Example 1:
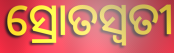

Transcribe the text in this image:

ସ୍ରୋତସ୍ଵତୀ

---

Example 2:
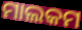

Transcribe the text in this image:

ମାଲକମ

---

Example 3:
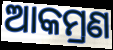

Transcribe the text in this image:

ଆକମ୍ରଣ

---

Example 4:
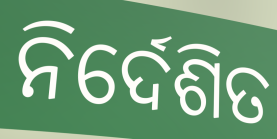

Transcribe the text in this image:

ନିର୍ଦେଶିତ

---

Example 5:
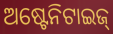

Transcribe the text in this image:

ଅଷ୍ଟେନିଟାଇଜ୍